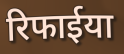
रिफाईया